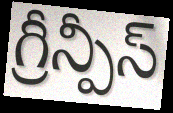
గ్రీన్పీస్